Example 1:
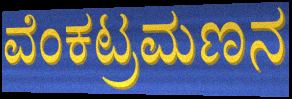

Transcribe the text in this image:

ವೆಂಕಟ್ರಮಣನ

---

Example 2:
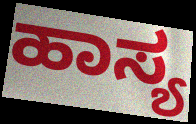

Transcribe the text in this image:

ಹಾಸ್ಯ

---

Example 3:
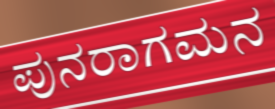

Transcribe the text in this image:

ಪುನರಾಗಮನ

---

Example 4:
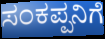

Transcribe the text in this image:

ಸಂಕಪ್ಪನಿಗೆ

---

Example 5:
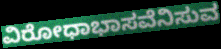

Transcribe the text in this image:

ವಿರೋಧಾಭಾಸವೆನಿಸುವ